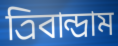
ত্রিবান্দ্রাম